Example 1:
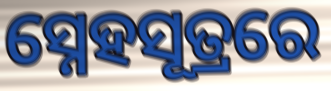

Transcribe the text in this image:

ସ୍ନେହସୂତ୍ରରେ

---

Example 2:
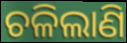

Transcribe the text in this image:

ଚଳିଲାଣି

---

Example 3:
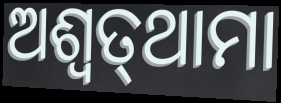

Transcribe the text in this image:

ଅଶ୍ଵତ୍‌ଥାମା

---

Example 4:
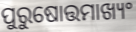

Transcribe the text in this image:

ପୁରୁଷୋତ୍ତମାଖ୍ୟଂ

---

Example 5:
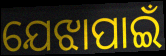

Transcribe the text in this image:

ଯେଝାପାଇଁ